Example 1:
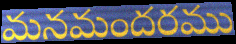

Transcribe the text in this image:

మనమందరము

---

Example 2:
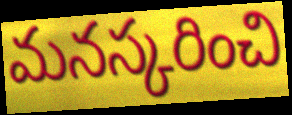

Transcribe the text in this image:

మనస్కరించి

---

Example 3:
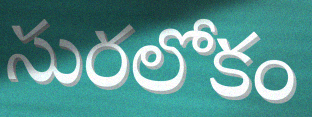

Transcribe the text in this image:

సురలోకం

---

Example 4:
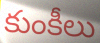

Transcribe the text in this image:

కుంకీలు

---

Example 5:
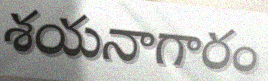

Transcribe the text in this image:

శయనాగారం